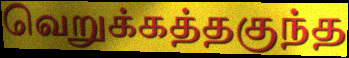
வெறுக்கத்தகுந்த